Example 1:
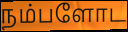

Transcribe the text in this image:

நம்பளோட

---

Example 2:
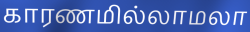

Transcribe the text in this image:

காரணமில்லாமலா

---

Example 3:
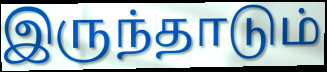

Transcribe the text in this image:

இருந்தாடும்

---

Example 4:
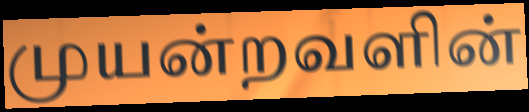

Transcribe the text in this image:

முயன்றவளின்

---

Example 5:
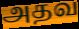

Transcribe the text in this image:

அதவ